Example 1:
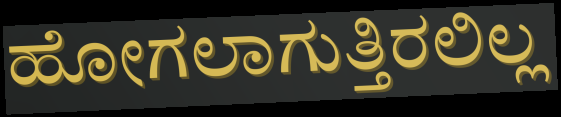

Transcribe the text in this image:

ಹೋಗಲಾಗುತ್ತಿರಲಿಲ್ಲ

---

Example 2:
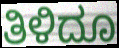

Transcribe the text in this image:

ತಿಳಿದೂ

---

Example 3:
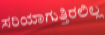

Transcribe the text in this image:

ಸರಿಯಾಗುತ್ತಿರಲಿಲ್ಲ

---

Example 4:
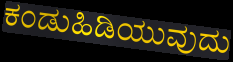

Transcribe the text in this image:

ಕಂಡುಹಿಡಿಯುವುದು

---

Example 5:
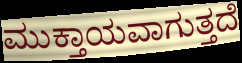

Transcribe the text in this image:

ಮುಕ್ತಾಯವಾಗುತ್ತದೆ